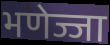
भणेज्जा